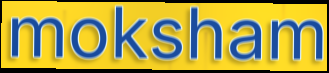
moksham